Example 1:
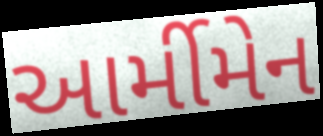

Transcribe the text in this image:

આર્મીમેન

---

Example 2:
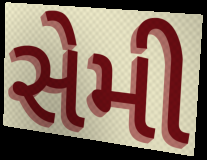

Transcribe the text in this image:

સેમી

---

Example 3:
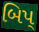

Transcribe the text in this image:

બિપ્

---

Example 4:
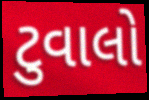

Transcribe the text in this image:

ટુવાલો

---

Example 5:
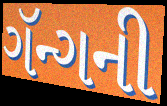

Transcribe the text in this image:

ગૅન્ગની